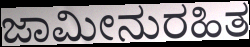
ಜಾಮೀನುರಹಿತ